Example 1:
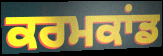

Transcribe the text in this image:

ਕਰਮਕਾਂਡ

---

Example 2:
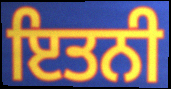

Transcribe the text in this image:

ਇਤਨੀ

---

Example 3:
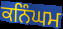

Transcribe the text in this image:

ਕਨਿੰਘਮ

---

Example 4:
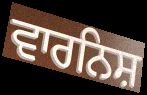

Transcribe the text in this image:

ਵਾਰਨਿਸ਼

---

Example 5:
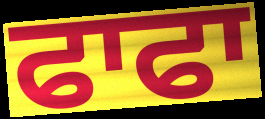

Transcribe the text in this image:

ਫਾਫਾ